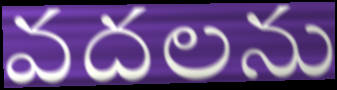
వదలను